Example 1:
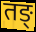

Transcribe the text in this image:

तङ्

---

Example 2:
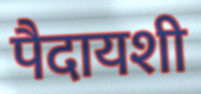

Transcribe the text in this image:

पैदायशी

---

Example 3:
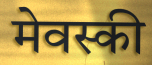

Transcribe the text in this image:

मेवस्की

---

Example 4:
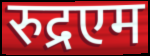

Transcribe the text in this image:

रुद्रएम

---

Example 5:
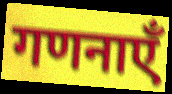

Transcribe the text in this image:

गणनाएँ